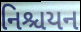
નિશ્ચયન